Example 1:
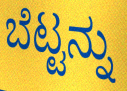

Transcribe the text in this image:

ಬೆಟ್ಟನ್ನು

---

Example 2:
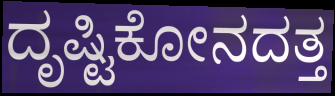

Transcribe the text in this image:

ದೃಷ್ಟಿಕೋನದತ್ತ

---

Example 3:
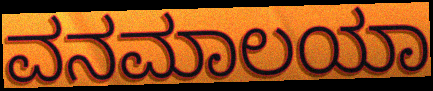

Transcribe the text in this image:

ವನಮಾಲಯಾ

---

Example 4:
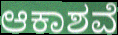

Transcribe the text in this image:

ಆಕಾಶವೆ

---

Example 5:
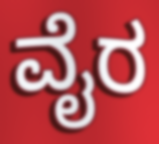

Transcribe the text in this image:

ವೈರ